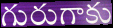
గురుగాకు